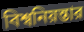
বিশ্বনিয়ন্তার